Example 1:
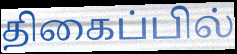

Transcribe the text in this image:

திகைப்பில்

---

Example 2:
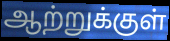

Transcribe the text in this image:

ஆற்றுக்குள்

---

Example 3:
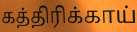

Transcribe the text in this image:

கத்திரிக்காய்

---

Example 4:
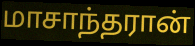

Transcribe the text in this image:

மாசாந்தரான்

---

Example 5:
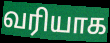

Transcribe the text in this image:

வரியாக